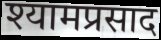
श्यामप्रसाद